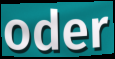
oder